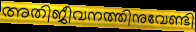
അതിജീവനത്തിനുവേണ്ടി